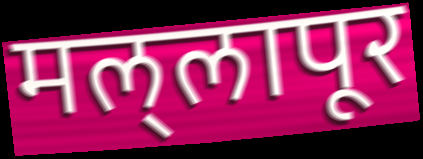
मल्लापूर